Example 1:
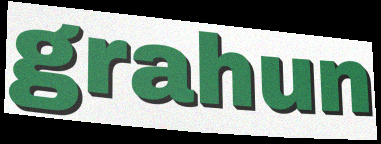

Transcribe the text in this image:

grahun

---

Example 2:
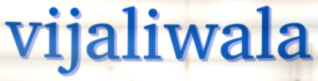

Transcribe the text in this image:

vijaliwala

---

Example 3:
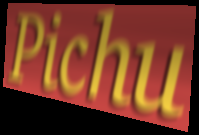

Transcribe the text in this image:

Pichu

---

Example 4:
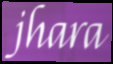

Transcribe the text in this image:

jhara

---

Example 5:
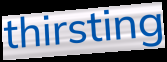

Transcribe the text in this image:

thirsting